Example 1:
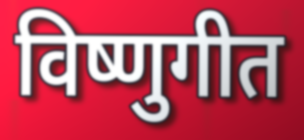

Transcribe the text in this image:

विष्णुगीत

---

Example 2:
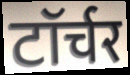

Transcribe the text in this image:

टॉर्चर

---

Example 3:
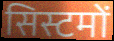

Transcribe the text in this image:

सिस्टमों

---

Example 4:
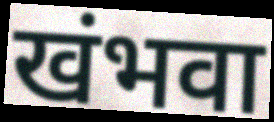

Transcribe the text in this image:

खंभवा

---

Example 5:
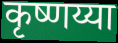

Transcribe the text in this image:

कृष्णय्या